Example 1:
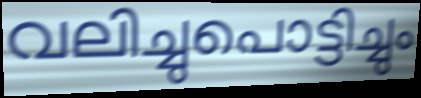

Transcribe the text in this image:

വലിച്ചുപൊട്ടിച്ചും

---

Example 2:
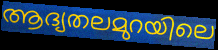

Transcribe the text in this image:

ആദ്യതലമുറയിലെ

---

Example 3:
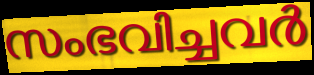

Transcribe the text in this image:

സംഭവിച്ചവർ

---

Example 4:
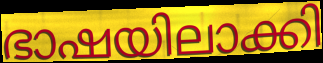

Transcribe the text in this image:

ഭാഷയിലാക്കി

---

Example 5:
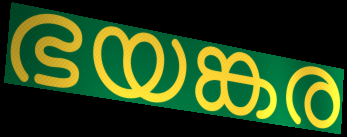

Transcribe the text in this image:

ഭയങ്കര